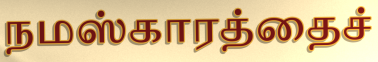
நமஸ்காரத்தைச்